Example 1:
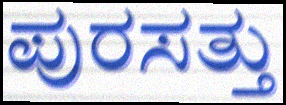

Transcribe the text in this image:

ಪುರಸತ್ತು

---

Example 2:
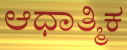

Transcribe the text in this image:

ಆಧಾತ್ಮಿಕ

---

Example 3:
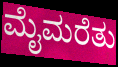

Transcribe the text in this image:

ಮೈಮರೆತು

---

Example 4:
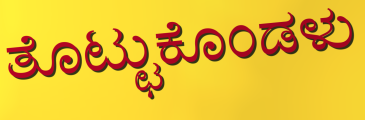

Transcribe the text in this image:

ತೊಟ್ಟುಕೊಂಡಳು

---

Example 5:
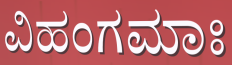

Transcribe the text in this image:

ವಿಹಂಗಮಾಃ